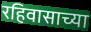
रहिवासाच्या